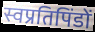
स्वप्रतिपिंडों